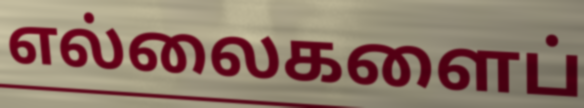
எல்லைகளைப்